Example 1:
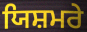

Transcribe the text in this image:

ਯਿਸ਼ਮਰੇ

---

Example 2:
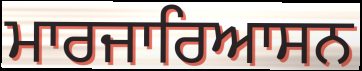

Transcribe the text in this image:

ਮਾਰਜਾਰਿਆਸਨ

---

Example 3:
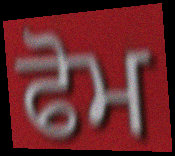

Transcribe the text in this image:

ਫੋਮ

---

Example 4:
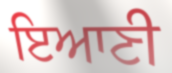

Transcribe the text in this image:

ਇਆਣੀ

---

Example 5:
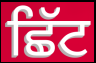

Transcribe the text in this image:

ਛਿੱਟ